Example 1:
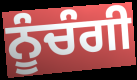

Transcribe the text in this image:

ਨੂੰਚੰਗੀ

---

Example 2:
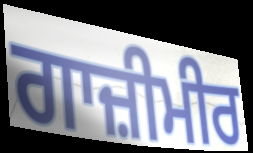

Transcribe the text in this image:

ਗਾਜ਼ੀਮੀਰ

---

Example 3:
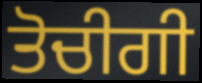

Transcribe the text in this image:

ਤੋਚੀਗੀ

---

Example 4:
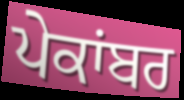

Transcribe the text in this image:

ਪੇਕਾਂਬਰ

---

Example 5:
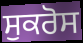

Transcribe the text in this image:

ਸੁਕਰੋਸ